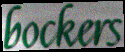
bockers